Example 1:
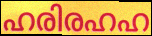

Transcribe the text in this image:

ഹരിരഹഹ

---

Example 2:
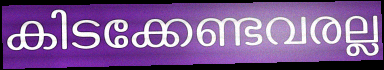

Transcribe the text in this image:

കിടക്കേണ്ടവരല്ല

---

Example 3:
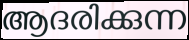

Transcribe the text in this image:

ആദരിക്കുന്ന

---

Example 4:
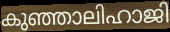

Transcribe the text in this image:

കുഞ്ഞാലിഹാജി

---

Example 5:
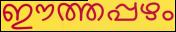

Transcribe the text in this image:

ഈത്തപ്പഴം